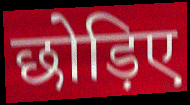
छोड़िए